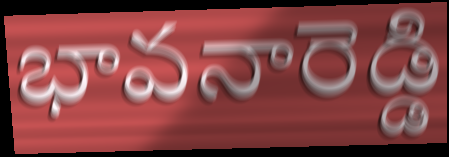
భావనారెడ్డి